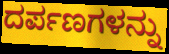
ದರ್ಪಣಗಳನ್ನು